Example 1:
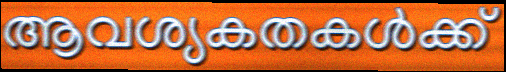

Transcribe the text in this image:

ആവശ്യകതകൾക്ക്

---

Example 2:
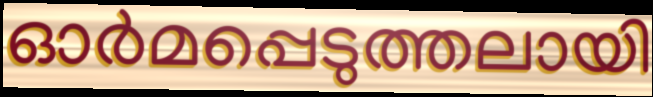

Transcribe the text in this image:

ഓർമപ്പെടുത്തലായി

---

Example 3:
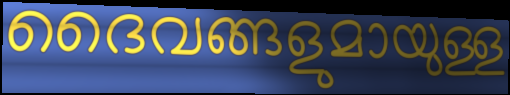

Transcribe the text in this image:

ദൈവങ്ങളുമായുള്ള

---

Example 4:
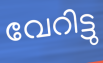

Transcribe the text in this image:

വേറിട്ടു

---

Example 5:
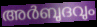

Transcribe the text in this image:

അർബുദവും